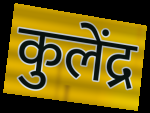
कुलेंद्र